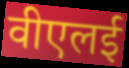
वीएलई